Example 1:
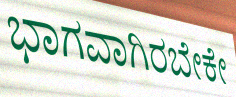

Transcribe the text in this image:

ಭಾಗವಾಗಿರಬೇಕೇ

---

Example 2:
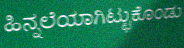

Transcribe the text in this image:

ಹಿನ್ನಲೆಯಾಗಿಟ್ಟುಕೊಂಡು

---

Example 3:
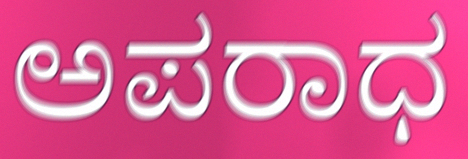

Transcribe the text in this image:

ಅಪರಾಧ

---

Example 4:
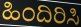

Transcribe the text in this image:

ಹಿಂದಿರಿಸಿ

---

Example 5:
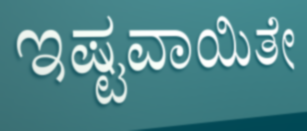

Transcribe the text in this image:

ಇಷ್ಟವಾಯಿತೇ